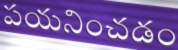
పయనించడం